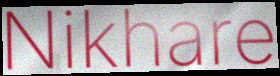
Nikhare